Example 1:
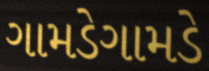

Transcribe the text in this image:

ગામડેગામડે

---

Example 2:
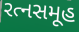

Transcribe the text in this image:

રત્નસમૂહ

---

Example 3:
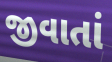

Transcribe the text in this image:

જીવાતાં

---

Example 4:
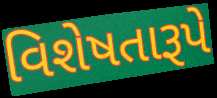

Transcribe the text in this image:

વિશેષતારૂપે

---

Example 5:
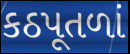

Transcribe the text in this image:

કઠપૂતળાં